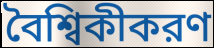
বৈশ্বিকীকরণ